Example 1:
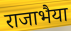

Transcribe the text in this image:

राजाभैया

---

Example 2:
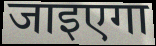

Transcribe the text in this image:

जाइएगा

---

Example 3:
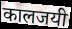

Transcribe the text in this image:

कालजयी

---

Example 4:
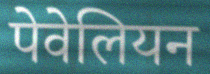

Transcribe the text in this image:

पेवेलियन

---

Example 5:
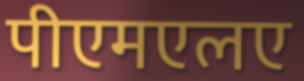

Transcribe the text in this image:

पीएमएलए